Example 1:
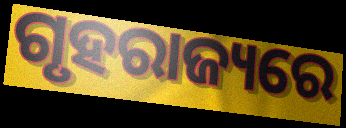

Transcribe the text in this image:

ଗୃହରାଜ୍ୟରେ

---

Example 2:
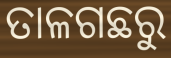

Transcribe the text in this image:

ତାଳଗଛରୁ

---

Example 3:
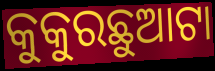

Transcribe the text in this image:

କୁକୁରଛୁଆଟା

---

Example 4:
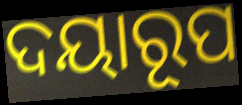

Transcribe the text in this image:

ଦୟାରୂପ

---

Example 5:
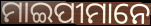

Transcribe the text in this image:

ମାଇପୀମାନେ